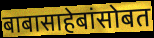
बाबासाहेबांसोबत